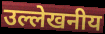
उल्लेखनीय